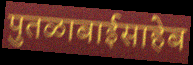
पुतळाबाईसाहेब